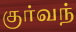
குர்வந்